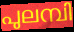
പുലമ്പി